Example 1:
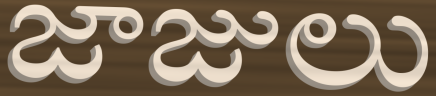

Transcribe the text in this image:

జాజులు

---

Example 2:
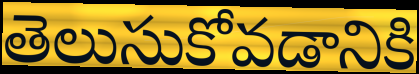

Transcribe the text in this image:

తెలుసుకోవడానికి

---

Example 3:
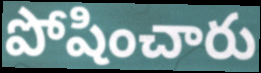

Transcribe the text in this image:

పోషించారు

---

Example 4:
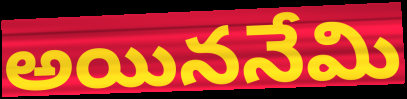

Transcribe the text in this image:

అయిననేమి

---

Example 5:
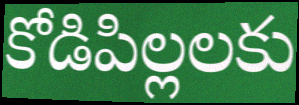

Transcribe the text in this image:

కోడిపిల్లలకు